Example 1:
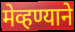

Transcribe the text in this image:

मेव्हण्याने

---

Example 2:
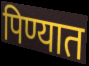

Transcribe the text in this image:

पिण्यात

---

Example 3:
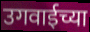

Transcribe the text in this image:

उगवाईच्या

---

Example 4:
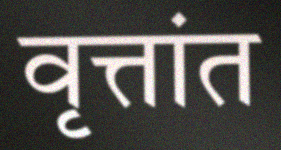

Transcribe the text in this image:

वृत्तांत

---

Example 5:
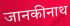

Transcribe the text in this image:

जानकीनाथ